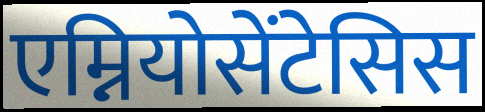
एम्नियोसेंटेसिस